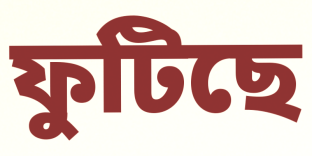
ফুটিছে